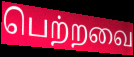
பெற்றவை